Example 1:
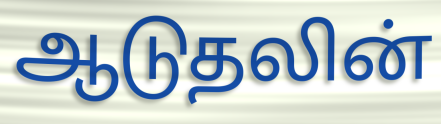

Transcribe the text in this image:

ஆடுதலின்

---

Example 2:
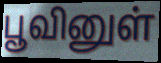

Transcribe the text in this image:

பூவினுள்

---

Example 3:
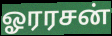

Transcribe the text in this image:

ஓரரசன்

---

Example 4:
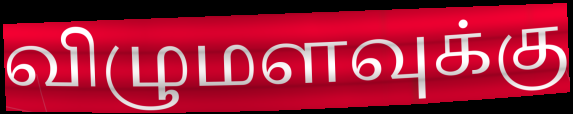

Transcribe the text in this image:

விழுமளவுக்கு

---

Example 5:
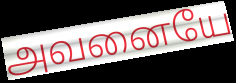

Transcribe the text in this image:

அவனையே